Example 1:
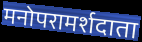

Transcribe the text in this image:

मनोपरामर्शदाता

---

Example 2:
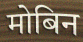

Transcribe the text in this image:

मोबिन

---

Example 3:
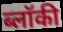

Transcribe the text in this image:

ब्लॉकी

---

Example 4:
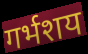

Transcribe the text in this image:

गर्भशय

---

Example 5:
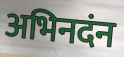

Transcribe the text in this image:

अभिनदंन